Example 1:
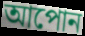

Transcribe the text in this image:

আপোন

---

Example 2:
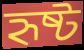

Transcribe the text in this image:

হৃষ্ট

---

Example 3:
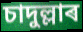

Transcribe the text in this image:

চাদুল্লাৰ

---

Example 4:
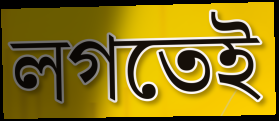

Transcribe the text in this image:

লগতেই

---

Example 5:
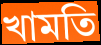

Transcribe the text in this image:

খামতি